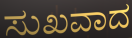
ಸುಖವಾದ